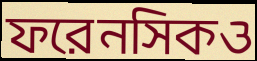
ফরেনসিকও